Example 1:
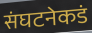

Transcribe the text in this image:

संघटनेकडं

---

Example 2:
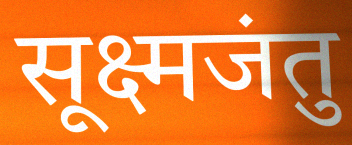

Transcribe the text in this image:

सूक्ष्मजंतु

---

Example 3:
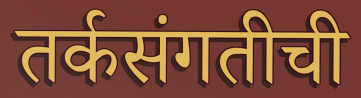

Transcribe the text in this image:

तर्कसंगतीची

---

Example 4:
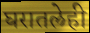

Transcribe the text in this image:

घरातलेही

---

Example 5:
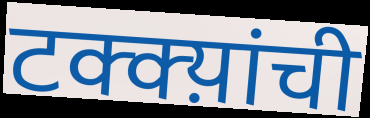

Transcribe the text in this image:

टक्क्य़ांची